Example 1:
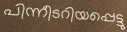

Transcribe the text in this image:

പിന്നീടറിയപ്പെട്ടു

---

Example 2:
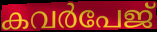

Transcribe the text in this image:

കവർപേജ്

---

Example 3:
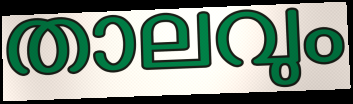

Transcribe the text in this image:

താലവും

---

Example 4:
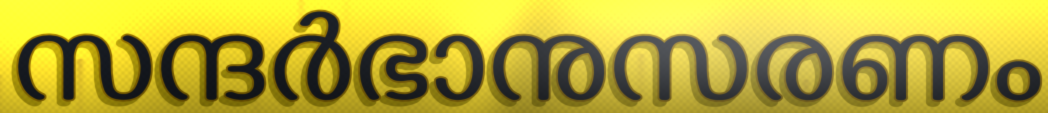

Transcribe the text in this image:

സന്ദർഭാനുസരണം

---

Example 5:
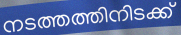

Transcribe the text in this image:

നടത്തത്തിനിടക്ക്